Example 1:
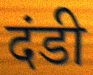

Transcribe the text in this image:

दंडी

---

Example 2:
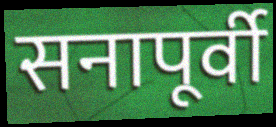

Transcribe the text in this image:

सनापूर्वी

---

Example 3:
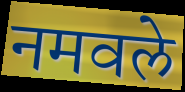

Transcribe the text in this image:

नमवले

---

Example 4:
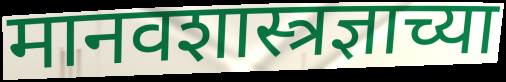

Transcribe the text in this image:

मानवशास्त्रज्ञाच्या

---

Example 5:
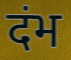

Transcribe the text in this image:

दंभ